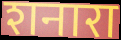
शनारा